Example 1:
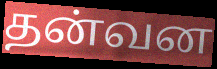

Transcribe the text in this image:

தன்வன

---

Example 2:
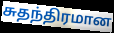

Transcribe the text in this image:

சுதந்திரமான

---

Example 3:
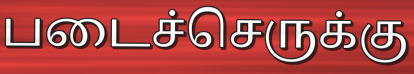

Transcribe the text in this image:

படைச்செருக்கு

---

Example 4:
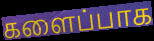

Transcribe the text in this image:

களைப்பாக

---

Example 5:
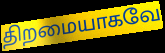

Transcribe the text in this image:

திறமையாகவே